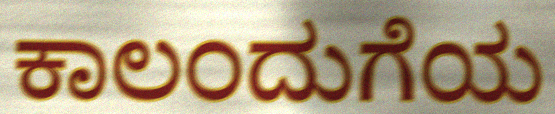
ಕಾಲಂದುಗೆಯ